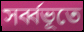
সর্ব্বভূতে